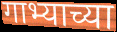
गाभ्याच्या